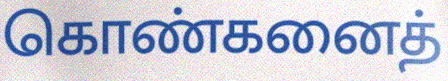
கொண்கனைத்